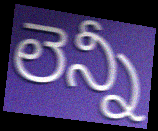
లెన్నీ